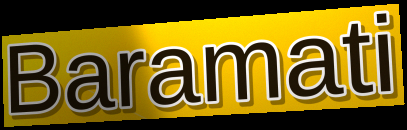
Baramati